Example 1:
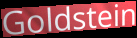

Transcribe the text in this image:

Goldstein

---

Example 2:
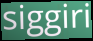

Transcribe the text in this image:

siggiri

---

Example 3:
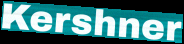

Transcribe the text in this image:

Kershner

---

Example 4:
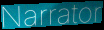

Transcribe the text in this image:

Narrator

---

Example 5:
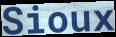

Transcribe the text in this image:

Sioux